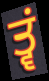
ਤ੍ਵਂ